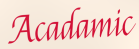
Acadamic